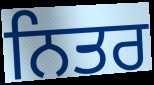
ਨਿਤਰ